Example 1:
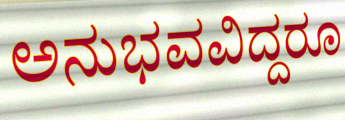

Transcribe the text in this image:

ಅನುಭವವಿದ್ದರೂ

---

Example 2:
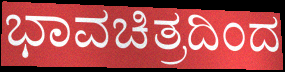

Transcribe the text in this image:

ಭಾವಚಿತ್ರದಿಂದ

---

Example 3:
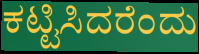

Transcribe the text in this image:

ಕಟ್ಟಿಸಿದರೆಂದು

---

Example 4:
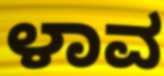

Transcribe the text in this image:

ಳಾವ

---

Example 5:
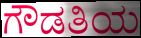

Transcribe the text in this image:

ಗೌಡತಿಯ